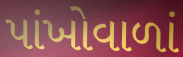
પાંખોવાળાં